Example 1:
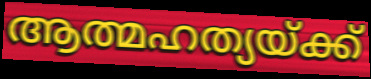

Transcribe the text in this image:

ആത്മഹത്യയ്ക്ക്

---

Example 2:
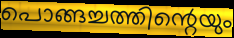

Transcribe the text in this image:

പൊങ്ങച്ചത്തിന്റെയും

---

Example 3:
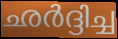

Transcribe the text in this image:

ഛർദ്ദിച്ച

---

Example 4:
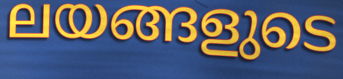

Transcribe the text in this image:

ലയങ്ങളുടെ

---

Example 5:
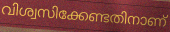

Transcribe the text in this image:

വിശ്വസിക്കേണ്ടതിനാണ്